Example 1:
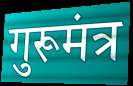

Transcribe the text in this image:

गुरूमंत्र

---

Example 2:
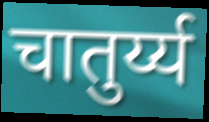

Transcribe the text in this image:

चातुर्य्य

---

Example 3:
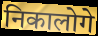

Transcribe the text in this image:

निकालोगे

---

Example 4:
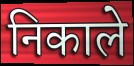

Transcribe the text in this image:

निकाले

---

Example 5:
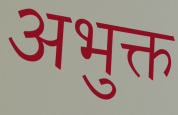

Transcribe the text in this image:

अभुक्त